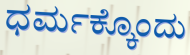
ಧರ್ಮಕ್ಕೊಂದು